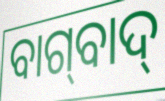
ବାଗ୍‌ବାଦ୍